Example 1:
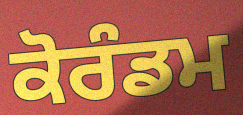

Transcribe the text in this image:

ਕੋਰੰਡਮ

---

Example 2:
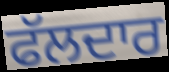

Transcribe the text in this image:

ਫੱਲਦਾਰ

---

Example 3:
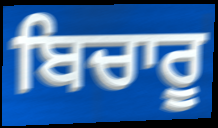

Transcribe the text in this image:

ਬਿਚਾਰੂ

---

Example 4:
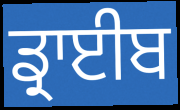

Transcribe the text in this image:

ਡ੍ਰਾਈਬ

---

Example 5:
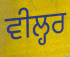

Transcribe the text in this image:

ਵੀਲ੍ਹਰ